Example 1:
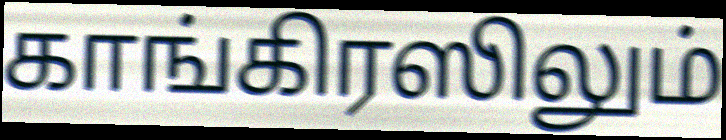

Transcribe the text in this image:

காங்கிரஸிலும்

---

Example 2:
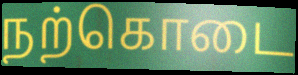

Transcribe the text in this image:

நற்கொடை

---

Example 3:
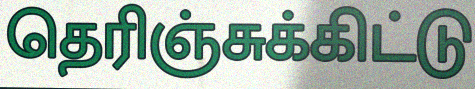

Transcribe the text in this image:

தெரிஞ்சுக்கிட்டு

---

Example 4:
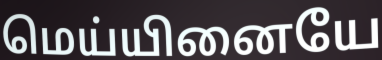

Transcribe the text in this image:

மெய்யினையே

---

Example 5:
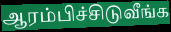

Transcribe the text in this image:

ஆரம்பிச்சிடுவீங்க